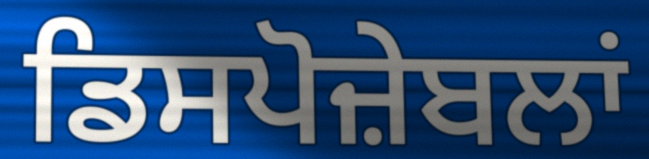
ਡਿਸਪੋਜ਼ੇਬਲਾਂ